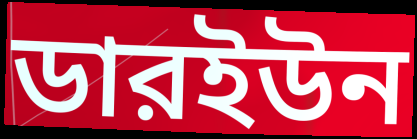
ডারইউন